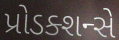
પ્રોડક્શન્સે